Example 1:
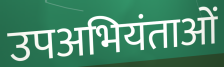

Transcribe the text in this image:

उपअभियंताओं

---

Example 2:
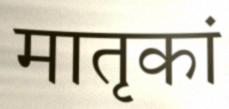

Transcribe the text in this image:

मातृकां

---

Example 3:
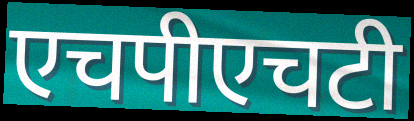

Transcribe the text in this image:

एचपीएचटी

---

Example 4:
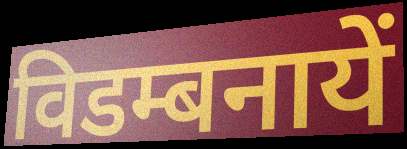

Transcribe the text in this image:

विडम्बनायें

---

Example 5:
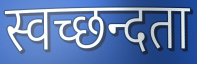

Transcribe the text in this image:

स्वच्छन्दता